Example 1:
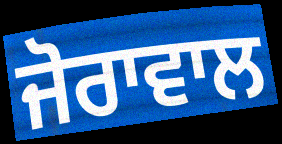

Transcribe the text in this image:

ਜੋਰਾਵਾਲ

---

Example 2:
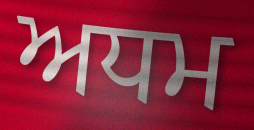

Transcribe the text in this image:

ਅਧਮ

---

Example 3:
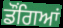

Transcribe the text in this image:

ਡੌਂਗਿਆਂ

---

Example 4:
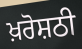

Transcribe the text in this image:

ਖ਼ਰੋਸ਼ਠੀ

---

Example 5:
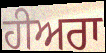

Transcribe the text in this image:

ਹੀਅਰਾ